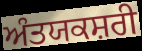
ਅੰਤਯਕਸ਼ਰੀ